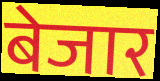
बेजार